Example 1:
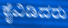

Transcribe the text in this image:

ಕೈವಿಡಿದರು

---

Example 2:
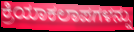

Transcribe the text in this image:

ಕ್ರಿಯಾಕಲಾಪಗಳನ್ನು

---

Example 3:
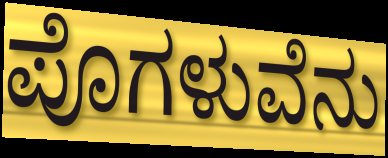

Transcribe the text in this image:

ಪೊಗಳುವೆನು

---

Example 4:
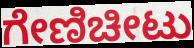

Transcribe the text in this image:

ಗೇಣಿಚೀಟು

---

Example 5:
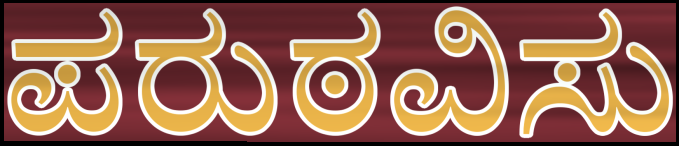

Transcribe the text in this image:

ಪರುಠವಿಸು